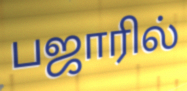
பஜாரில்